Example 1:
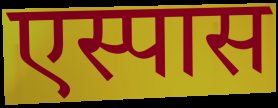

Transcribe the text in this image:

एस्पास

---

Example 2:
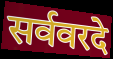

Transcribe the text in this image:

सर्ववरदे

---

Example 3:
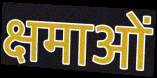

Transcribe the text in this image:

क्षमाओं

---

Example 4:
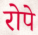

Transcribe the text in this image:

रोपे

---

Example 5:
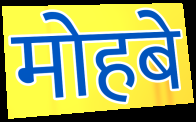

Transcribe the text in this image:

मोहबे